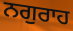
ਨਗੁਰਾਹ